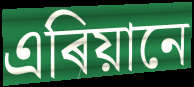
এৰিয়ানে